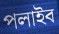
পলাইব